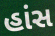
હાંસ